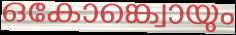
ഒകോങ്ക്വൊയും